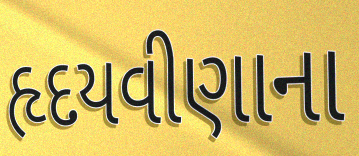
હૃદયવીણાના